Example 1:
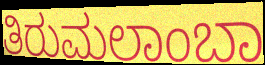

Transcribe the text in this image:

ತಿರುಮಲಾಂಬಾ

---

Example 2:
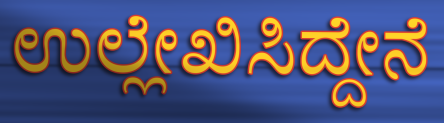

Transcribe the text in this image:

ಉಲ್ಲೇಖಿಸಿದ್ದೇನೆ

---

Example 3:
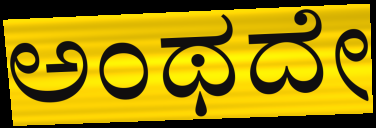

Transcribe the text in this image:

ಅಂಥದೇ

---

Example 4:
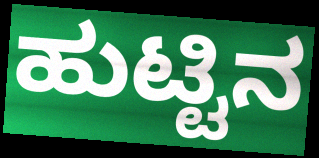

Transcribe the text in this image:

ಹುಟ್ಟಿನ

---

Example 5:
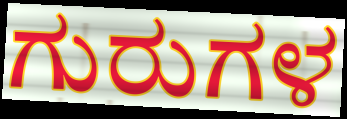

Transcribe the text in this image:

ಗುರುಗಳ